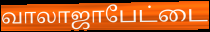
வாலாஜாபேட்டை